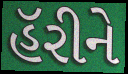
હૅરીને